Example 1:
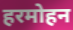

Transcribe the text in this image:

हरमोहन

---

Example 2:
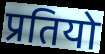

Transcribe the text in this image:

प्रतियो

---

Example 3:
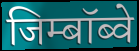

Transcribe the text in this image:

जिम्बॉब्वे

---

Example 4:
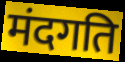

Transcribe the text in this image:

मंदगति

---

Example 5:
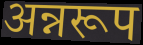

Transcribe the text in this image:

अन्नरूप